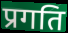
प्रगति